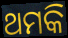
ଥମକି